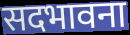
सदभावना